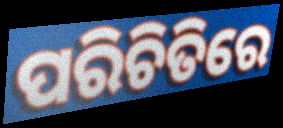
ପରିଚିତିରେ